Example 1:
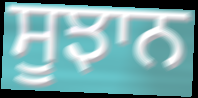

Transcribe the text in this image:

ਸੂਝਾਨ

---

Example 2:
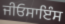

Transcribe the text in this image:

ਜੀਓਸਾਇੰਸ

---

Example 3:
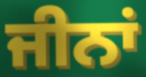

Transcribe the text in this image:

ਜੀਨਾਂ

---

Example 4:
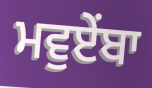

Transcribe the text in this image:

ਮਵੁਏਂਬਾ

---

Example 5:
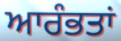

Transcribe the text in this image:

ਆਰੰਭਤਾਂ